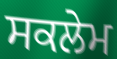
ਸਕਲੇਮ